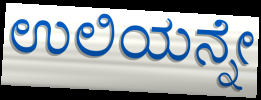
ಉಲಿಯನ್ನೇ